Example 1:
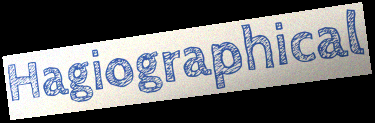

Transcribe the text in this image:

Hagiographical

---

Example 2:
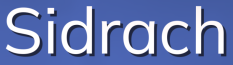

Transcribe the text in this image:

Sidrach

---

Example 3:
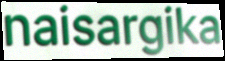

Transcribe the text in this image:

naisargika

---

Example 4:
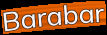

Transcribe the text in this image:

Barabar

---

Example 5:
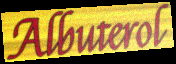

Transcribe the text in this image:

Albuterol